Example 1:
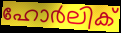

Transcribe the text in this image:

ഹോർലിക്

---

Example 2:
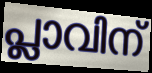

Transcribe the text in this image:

പ്ലാവിന്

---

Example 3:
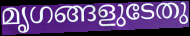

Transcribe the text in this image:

മൃഗങ്ങളുടേതു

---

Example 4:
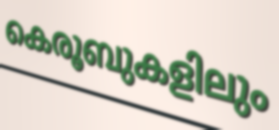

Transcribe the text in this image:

കെരൂബുകളിലും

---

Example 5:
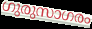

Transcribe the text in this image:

ഗുരുസാഗരം